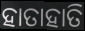
ହାତାହାତି